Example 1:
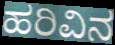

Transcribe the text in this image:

ಹರಿವಿನ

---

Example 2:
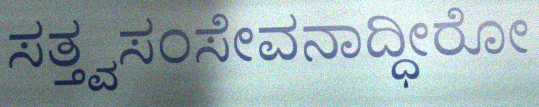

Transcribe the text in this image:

ಸತ್ತ್ವಸಂಸೇವನಾದ್ಧೀರೋ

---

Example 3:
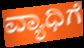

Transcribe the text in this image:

ವ್ಯಾಧಿಗೆ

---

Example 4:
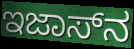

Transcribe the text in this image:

ಇಜಾಸ್‌ನ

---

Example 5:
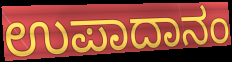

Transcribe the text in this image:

ಉಪಾದಾನಂ